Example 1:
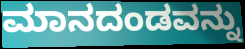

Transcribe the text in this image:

ಮಾನದಂಡವನ್ನು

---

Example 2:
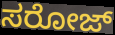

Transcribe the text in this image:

ಸರೋಜ್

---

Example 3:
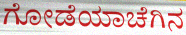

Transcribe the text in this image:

ಗೋಡೆಯಾಚೆಗಿನ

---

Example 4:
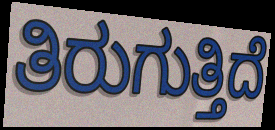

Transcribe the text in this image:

ತಿರುಗುತ್ತಿದೆ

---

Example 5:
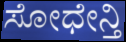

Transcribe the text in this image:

ಸೋಧೇನ್ತಿ